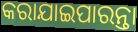
କରାଯାଇପାରନ୍ତା